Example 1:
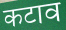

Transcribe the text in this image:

कटाव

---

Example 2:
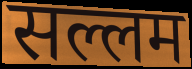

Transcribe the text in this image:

सल्लम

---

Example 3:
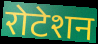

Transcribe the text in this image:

रोटेशन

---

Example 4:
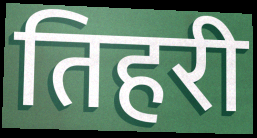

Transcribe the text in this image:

तिहरी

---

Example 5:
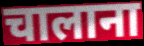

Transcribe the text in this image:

चालाना